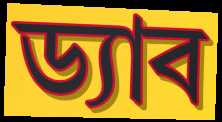
ড্যাব